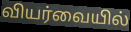
வியர்வையில்